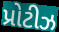
પ્રોટીઝ